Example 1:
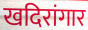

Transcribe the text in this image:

खदिरांगार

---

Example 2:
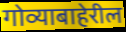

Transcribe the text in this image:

गोव्याबाहेरील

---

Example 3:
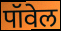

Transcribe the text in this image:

पॉवेल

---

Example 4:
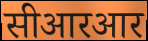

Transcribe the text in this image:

सीआरआर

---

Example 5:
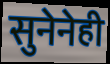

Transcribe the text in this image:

सुनेनेही